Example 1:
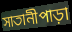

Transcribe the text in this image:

সাতানীপাড়া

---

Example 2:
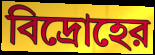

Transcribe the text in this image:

বিদ্রোহের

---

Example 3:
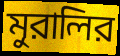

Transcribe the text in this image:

মুরালির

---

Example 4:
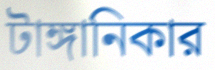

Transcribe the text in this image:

টাঙ্গানিকার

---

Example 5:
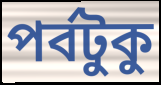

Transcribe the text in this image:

পর্বটুকু